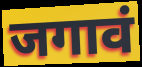
जगावं